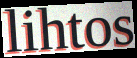
lihtos